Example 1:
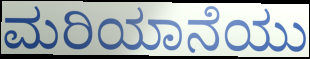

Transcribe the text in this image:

ಮರಿಯಾನೆಯು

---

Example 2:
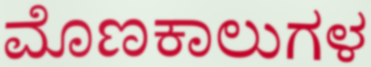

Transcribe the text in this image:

ಮೊಣಕಾಲುಗಳ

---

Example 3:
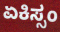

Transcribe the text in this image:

ಏಕಿಸ್ಸಂ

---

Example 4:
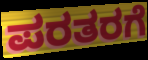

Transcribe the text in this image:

ಪರತರಗೆ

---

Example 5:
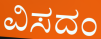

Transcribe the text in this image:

ವಿಸದಂ